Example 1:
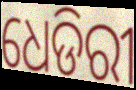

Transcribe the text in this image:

ଧେଡିରୀ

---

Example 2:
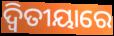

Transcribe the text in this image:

ଦ୍ଵିତୀୟାରେ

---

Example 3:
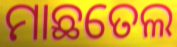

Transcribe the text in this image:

ମାଛତେଲ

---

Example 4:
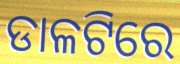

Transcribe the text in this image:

ଡାଳଟିରେ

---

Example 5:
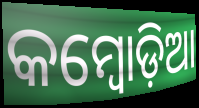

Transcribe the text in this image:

କମ୍ୱୋଡ଼ିଆ